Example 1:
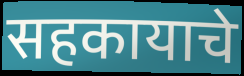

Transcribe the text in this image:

सहकायाचे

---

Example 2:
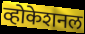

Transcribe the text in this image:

व्होकेशनल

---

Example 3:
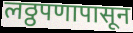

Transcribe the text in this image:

लठ्ठपणापासून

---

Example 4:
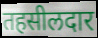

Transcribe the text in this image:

तहसीलदार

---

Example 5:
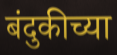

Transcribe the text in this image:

बंदुकीच्या